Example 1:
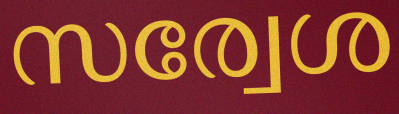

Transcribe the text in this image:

സര്വേശ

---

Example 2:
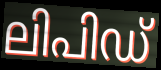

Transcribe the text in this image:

ലിപിഡ്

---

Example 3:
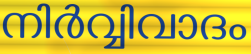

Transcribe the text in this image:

നിർവ്വിവാദം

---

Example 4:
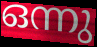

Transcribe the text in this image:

ഒന്നു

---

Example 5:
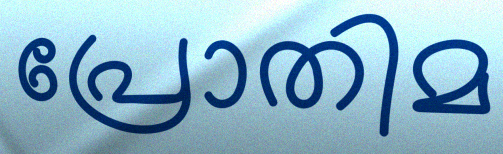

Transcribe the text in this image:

പ്രോതിമ